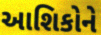
આશિકોને